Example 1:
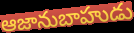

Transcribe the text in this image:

ఆజానుబాహుడు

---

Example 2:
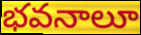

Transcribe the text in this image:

భవనాలూ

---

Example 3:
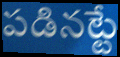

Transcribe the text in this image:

పడినట్టే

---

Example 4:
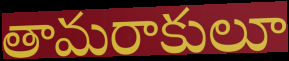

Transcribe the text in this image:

తామరాకులూ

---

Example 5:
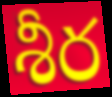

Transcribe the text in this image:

శీర